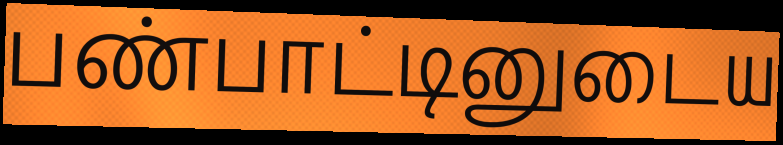
பண்பாட்டினுடைய